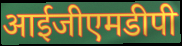
आईजीएमडीपी